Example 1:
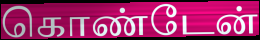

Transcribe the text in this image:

கொண்டேன்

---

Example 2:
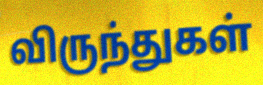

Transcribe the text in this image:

விருந்துகள்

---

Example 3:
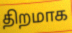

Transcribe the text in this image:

திறமாக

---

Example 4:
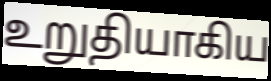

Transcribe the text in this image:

உறுதியாகிய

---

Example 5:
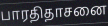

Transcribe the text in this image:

பாரதிதாசனை